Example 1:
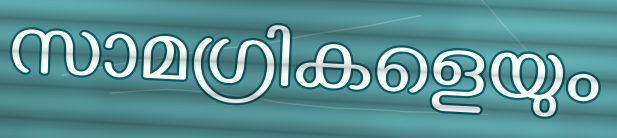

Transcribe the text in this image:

സാമഗ്രികളെയും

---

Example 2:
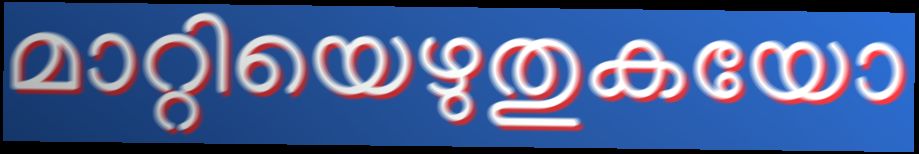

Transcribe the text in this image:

മാറ്റിയെഴുതുകയോ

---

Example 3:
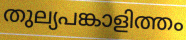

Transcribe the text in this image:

തുല്യപങ്കാളിത്തം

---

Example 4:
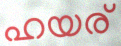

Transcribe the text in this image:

ഹയര്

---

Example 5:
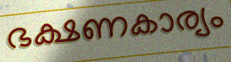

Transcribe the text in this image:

ഭക്ഷണകാര്യം